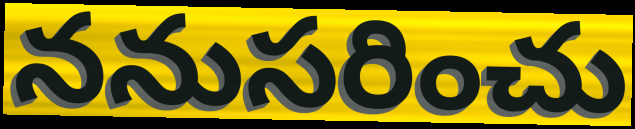
ననుసరించు